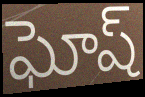
ఘోష్